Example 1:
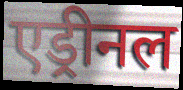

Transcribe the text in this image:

एड्रीनल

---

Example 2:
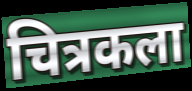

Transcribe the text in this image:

चित्रकला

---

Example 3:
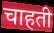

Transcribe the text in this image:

चाहती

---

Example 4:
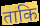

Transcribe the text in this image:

ताकि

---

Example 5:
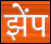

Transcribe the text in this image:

झेंप